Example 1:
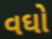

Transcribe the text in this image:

વઘો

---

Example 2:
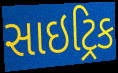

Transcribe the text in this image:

સાઇટ્રિક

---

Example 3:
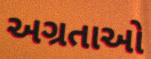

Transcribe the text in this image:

અગ્રતાઓ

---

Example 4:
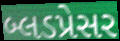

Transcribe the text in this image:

બ્લડપ્રેસર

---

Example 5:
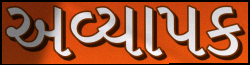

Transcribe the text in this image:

અવ્યાપક